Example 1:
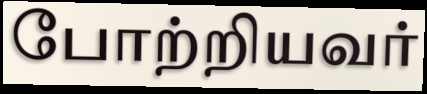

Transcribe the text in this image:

போற்றியவர்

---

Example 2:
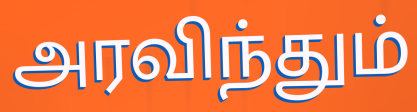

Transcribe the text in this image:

அரவிந்தும்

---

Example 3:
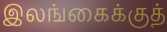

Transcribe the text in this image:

இலங்கைக்குத்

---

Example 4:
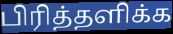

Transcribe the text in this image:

பிரித்தளிக்க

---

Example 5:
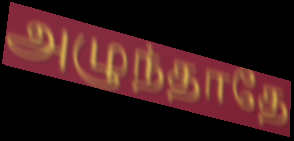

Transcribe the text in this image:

அழுந்தாதே